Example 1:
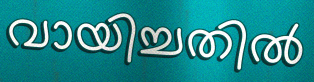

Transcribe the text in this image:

വായിച്ചതിൽ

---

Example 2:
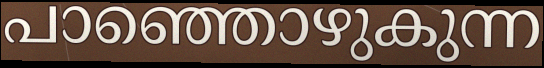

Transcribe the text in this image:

പാഞ്ഞൊഴുകുന്ന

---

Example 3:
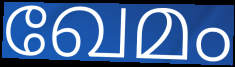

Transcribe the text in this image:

ഖേമം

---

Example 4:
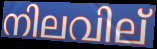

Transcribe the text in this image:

നിലവില്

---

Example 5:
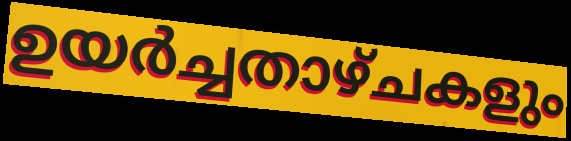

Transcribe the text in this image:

ഉയർച്ചതാഴ്ചകളും